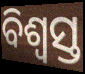
ବିଶ୍ୱସ୍ତ